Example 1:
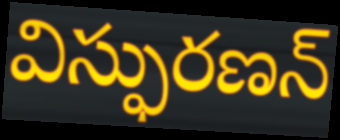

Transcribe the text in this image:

విస్ఫురణన్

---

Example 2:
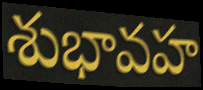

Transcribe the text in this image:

శుభావహ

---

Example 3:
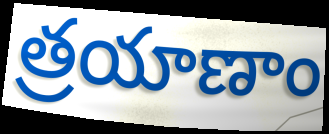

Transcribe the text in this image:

త్రయాణాం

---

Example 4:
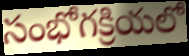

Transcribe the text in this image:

సంభోగక్రియలో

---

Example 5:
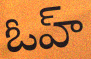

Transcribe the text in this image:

ఓహ్